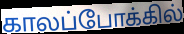
காலப்போக்கில்